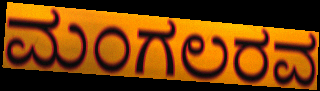
ಮಂಗಲರವ